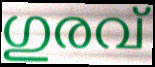
ഗുരവ്